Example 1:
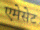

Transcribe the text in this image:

एमेसेट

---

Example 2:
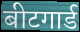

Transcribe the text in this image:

बीटगार्ड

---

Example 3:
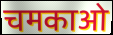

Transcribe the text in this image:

चमकाओ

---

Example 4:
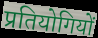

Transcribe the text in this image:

प्रतियोगियों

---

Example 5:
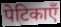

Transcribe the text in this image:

पेटिकाएँ